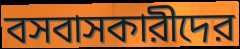
বসবাসকারীদের